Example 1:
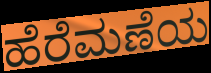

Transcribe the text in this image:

ಹೆರೆಮಣೆಯ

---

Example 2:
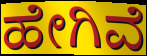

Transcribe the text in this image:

ಹೇಗಿವೆ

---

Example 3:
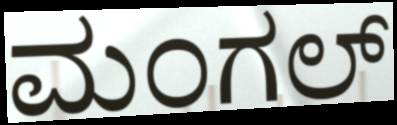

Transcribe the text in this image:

ಮಂಗಲ್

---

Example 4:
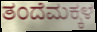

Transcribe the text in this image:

ತಂದೆಮಕ್ಕಳ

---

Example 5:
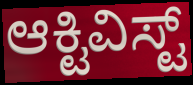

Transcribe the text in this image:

ಆಕ್ಟಿವಿಸ್ಟ್